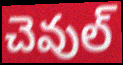
చెవుల్